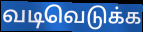
வடிவெடுக்க